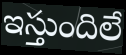
ఇస్తుందిలే